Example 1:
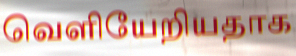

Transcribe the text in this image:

வெளியேறியதாக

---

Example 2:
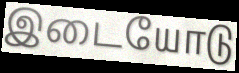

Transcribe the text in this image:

இடையோடு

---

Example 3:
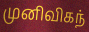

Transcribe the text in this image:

முனிவிகந்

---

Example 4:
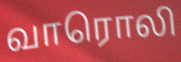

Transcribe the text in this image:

வாரொலி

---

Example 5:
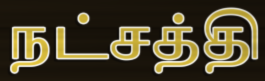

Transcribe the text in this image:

நட்சத்தி